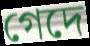
গেদে